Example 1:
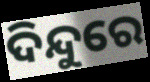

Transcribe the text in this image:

ଦିନ୍ଦୁରେ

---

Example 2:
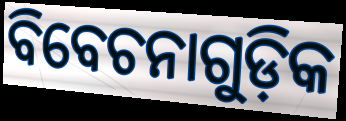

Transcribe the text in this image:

ବିବେଚନାଗୁଡ଼ିକ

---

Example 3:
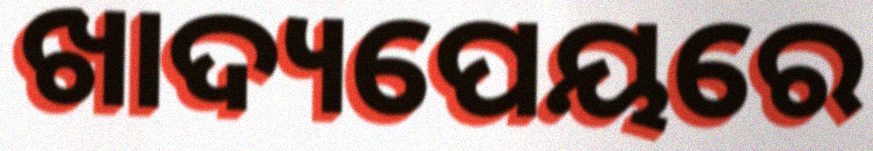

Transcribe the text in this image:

ଖାଦ୍ୟପେୟରେ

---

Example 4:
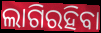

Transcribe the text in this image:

ଲାଗିରହିବା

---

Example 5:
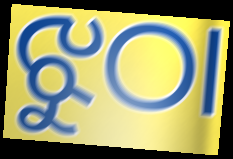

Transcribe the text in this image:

ଝୁଠା